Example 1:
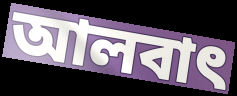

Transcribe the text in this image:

আলবাৎ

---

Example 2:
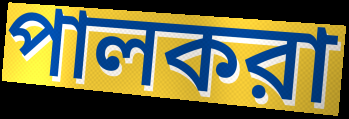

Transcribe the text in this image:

পালকরা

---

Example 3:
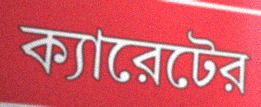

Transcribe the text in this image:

ক্যারেটের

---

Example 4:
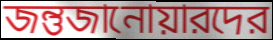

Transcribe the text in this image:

জন্তুজানোয়ারদের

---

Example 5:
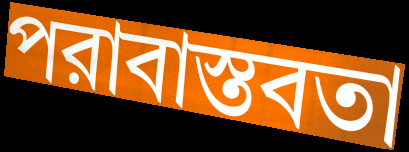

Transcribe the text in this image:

পরাবাস্তবতা